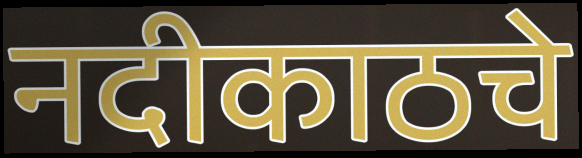
नदीकाठचे